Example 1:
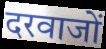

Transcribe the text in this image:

दरवाजों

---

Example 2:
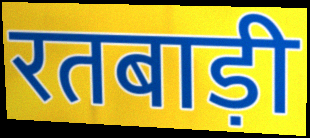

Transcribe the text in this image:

रतबाड़ी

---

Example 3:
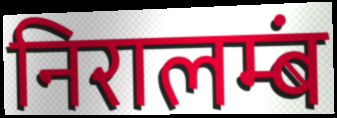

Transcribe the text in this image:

निरालम्बं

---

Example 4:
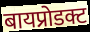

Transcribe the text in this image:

बायप्रोडक्ट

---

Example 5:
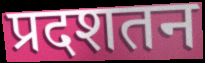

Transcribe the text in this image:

प्रदशतन